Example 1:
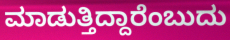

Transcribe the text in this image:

ಮಾಡುತ್ತಿದ್ದಾರೆಂಬುದು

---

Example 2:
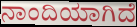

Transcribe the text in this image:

ನಾಂದಿಯಾಗಿದೆ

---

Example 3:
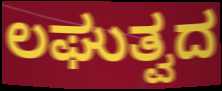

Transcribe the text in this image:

ಲಘುತ್ವದ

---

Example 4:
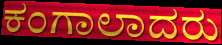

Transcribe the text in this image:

ಕಂಗಾಲಾದರು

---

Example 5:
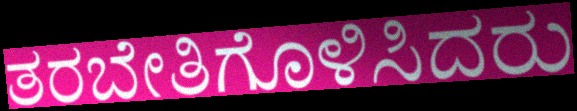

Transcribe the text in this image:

ತರಬೇತಿಗೊಳಿಸಿದರು